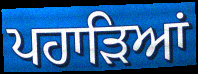
ਪਹਾੜਿਆਂ